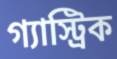
গ্যাস্ট্রিক